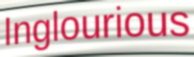
Inglourious